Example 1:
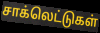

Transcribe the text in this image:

சாக்லெட்டுகள்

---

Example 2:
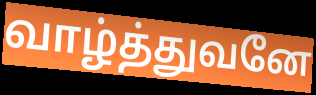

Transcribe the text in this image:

வாழ்த்துவனே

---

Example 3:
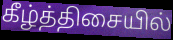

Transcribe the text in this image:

கீழ்த்திசையில்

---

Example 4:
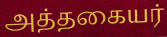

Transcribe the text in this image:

அத்தகையர்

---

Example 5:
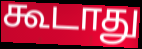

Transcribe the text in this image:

கூடாது